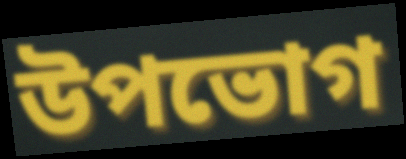
উপভোগ